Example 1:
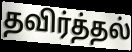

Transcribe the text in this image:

தவிர்த்தல்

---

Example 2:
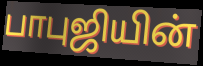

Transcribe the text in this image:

பாபுஜியின்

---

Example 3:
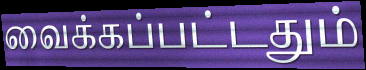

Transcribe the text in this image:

வைக்கப்பட்டதும்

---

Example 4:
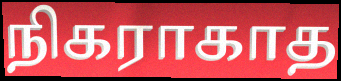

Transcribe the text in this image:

நிகராகாத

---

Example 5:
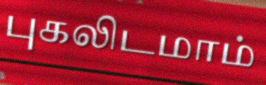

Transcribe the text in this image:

புகலிடமாம்